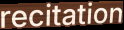
recitation